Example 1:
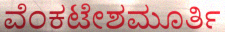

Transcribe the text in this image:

ವೆಂಕಟೇಶಮೂರ್ತಿ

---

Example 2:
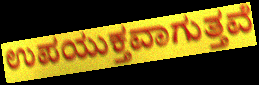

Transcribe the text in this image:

ಉಪಯುಕ್ತವಾಗುತ್ತವೆ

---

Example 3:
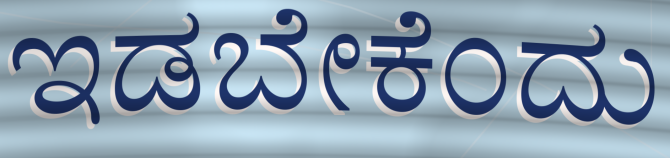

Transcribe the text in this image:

ಇಡಬೇಕೆಂದು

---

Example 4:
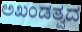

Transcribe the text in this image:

ಅಖಂಡತ್ವದ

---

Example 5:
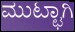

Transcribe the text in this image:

ಮುಟ್ಟಾಗಿ